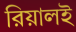
রিয়ালই